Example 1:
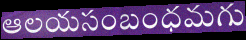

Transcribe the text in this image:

ఆలయసంబంధమగు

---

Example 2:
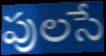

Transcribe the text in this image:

పులసే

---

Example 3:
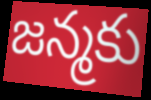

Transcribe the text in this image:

జన్మకు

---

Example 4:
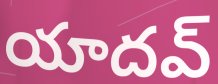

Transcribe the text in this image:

యాదవ్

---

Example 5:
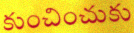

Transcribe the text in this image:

కుంచించుకు